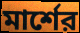
মার্শের